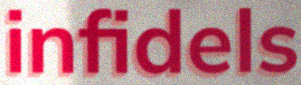
infidels